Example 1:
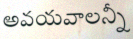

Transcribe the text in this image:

అవయవాలన్నీ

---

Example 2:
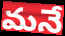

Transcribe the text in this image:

మనే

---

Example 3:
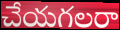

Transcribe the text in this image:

చేయగలరా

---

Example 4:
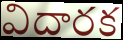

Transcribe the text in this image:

విదారక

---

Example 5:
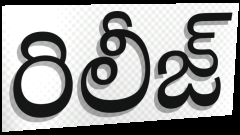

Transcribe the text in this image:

రిలీజ్